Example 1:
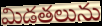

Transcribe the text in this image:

మిడతలును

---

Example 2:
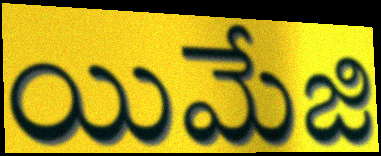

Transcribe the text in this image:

యిమేజి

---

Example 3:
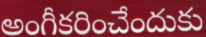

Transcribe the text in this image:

అంగీకరించేందుకు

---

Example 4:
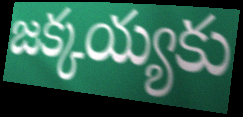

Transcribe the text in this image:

జక్కయ్యకు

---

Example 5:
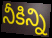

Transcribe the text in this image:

నీకిన్ని